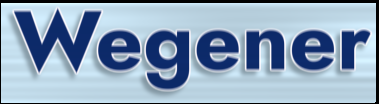
Wegener